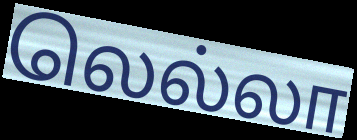
லெல்லா